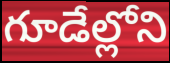
గూడేల్లోని